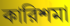
কারিশমা